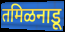
तमिळनाडू